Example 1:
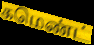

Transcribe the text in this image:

கமெண்ட்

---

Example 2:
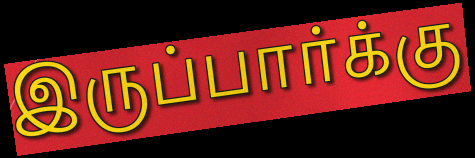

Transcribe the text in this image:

இருப்பார்க்கு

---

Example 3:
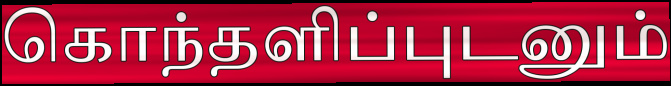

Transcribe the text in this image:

கொந்தளிப்புடனும்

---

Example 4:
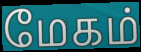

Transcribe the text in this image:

மேகம்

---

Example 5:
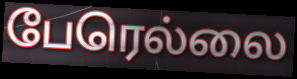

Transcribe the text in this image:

பேரெல்லை